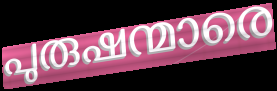
പുരുഷന്മാരെ